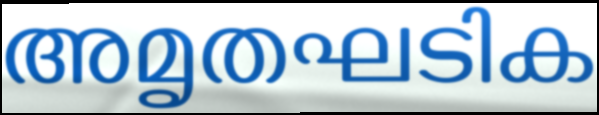
അമൃതഘടിക